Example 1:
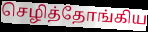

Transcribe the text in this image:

செழித்தோங்கிய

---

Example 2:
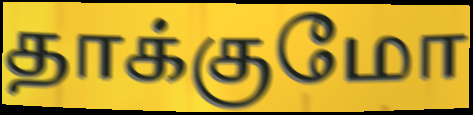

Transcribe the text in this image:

தாக்குமோ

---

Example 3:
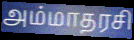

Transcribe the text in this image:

அம்மாதரசி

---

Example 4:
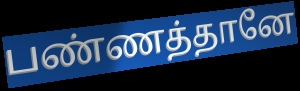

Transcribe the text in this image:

பண்ணத்தானே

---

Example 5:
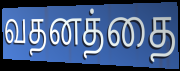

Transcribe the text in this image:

வதனத்தை